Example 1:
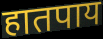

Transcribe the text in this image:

हातपाय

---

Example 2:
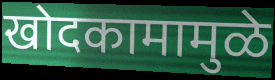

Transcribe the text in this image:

खोदकामामुळे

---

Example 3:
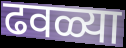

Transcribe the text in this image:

ढवळ्या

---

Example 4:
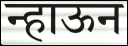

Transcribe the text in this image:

न्हाऊन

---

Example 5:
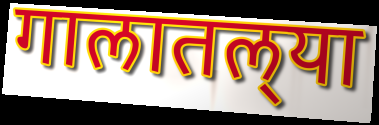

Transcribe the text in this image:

गालातल्या